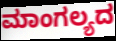
ಮಾಂಗಲ್ಯದ